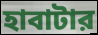
হাবাটার